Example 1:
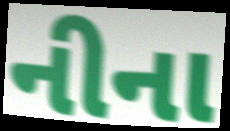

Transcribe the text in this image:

નીના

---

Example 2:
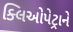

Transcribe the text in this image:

ક્લિઓપેટ્રાને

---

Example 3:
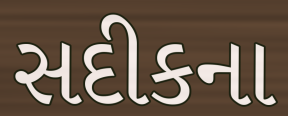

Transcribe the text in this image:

સદીકના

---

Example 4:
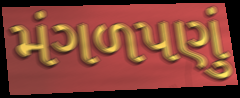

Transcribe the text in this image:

મંગળપણું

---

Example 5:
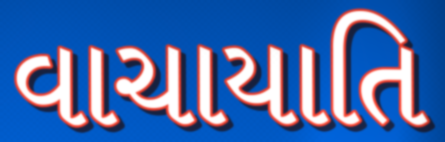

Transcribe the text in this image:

વાચાયાતિ